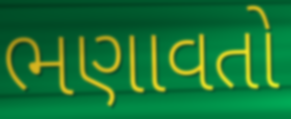
ભણાવતો